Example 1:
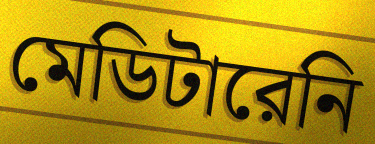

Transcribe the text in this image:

মেডিটারেনি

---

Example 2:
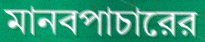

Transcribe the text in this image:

মানবপাচারের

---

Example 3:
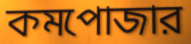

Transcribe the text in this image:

কমপোজার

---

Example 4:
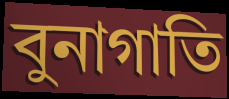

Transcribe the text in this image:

বুনাগাতি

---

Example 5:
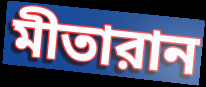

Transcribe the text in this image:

মীতারান